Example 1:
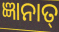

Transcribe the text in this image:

ଜ୍ଞାନାତ୍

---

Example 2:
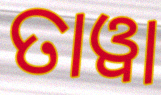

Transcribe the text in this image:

ତାୱା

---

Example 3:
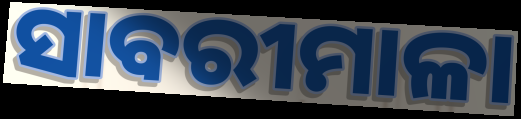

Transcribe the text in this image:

ସାବରୀମାଳା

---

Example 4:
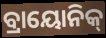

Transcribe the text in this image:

ବ୍ରାୟୋନିକ୍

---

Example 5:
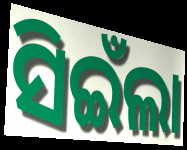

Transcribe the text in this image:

ସିଇଁଲା